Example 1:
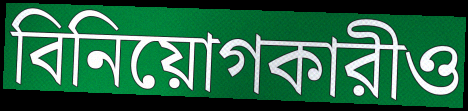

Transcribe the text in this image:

বিনিয়োগকারীও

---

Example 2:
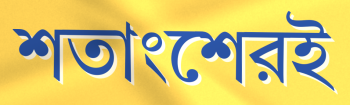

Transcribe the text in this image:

শতাংশেরই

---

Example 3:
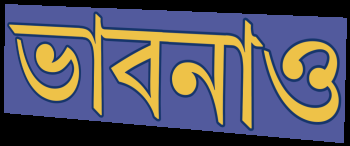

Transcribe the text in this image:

ভাবনাও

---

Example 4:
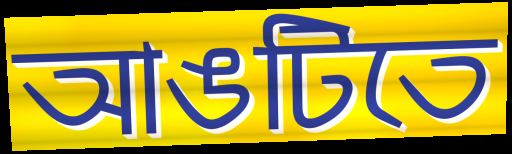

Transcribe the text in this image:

আঙটিতে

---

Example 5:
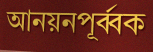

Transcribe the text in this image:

আনয়নপূর্ব্বক